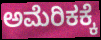
ಅಮೆರಿಕಕ್ಕೆ